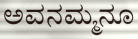
ಅವನಮ್ಮನೂ